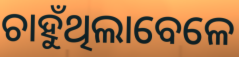
ଚାହୁଁଥିଲାବେଳେ